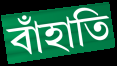
বাঁহাতি